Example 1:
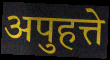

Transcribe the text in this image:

अपुहत्ते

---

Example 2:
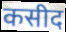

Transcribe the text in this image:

कसीद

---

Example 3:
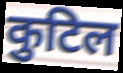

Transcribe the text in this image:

कुटिल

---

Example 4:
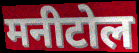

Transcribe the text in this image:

मनीटोल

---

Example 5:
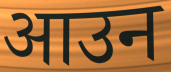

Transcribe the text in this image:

आउन